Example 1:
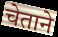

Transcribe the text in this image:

चेताने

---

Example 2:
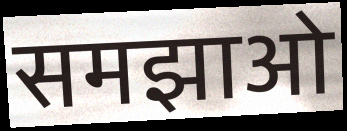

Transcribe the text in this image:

समझाओ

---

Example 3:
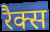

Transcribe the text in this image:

रैक्स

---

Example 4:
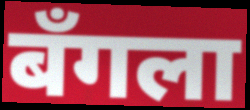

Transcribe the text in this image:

बँगला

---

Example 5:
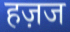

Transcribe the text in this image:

हज़ज